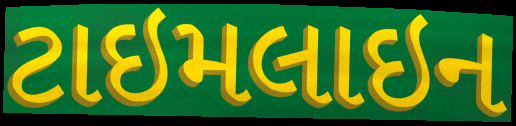
ટાઇમલાઇન